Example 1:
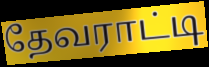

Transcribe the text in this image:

தேவராட்டி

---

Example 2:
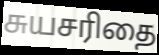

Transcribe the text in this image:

சுயசரிதை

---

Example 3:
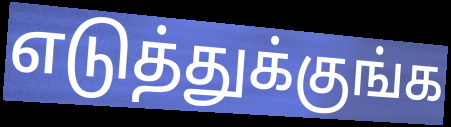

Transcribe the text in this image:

எடுத்துக்குங்க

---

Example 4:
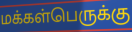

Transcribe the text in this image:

மக்கள்பெருக்கு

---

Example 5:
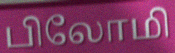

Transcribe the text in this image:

பிலோமி